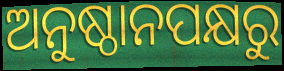
ଅନୁଷ୍ଠାନପକ୍ଷରୁ